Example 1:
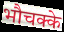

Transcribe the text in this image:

भौचक्के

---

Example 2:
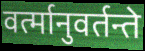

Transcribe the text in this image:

वर्त्मानुवर्तन्ते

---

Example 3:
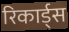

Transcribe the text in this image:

रिकार्ड्स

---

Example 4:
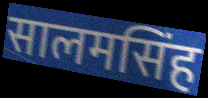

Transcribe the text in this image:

सालमसिंह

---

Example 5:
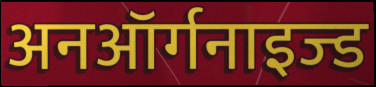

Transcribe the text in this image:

अनऑर्गनाइज्ड